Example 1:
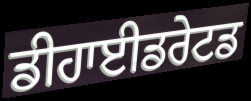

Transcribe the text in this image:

ਡੀਹਾਈਡਰੇਟਡ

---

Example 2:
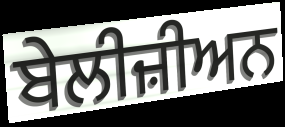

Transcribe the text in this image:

ਬੇਲੀਜ਼ੀਅਨ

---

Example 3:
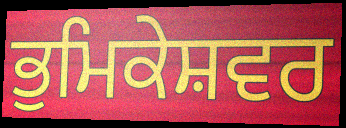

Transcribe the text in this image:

ਭੁਮਿਕੇਸ਼ਵਰ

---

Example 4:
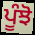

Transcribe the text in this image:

ਪੂੰਝੋ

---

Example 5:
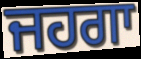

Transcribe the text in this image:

ਜਹਗਾ